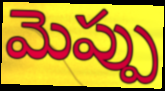
మెప్పు